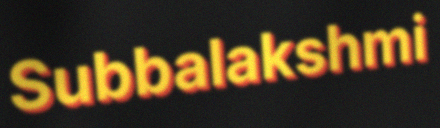
Subbalakshmi